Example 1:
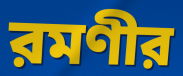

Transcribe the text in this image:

রমণীর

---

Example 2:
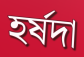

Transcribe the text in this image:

হর্ষদা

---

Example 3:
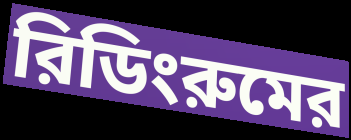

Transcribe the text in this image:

রিডিংরুমের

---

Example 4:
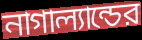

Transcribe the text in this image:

নাগাল্যান্ডের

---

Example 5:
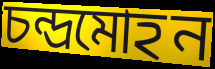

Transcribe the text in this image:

চন্দ্রমোহন